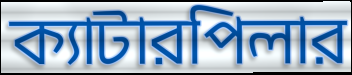
ক্যাটারপিলার